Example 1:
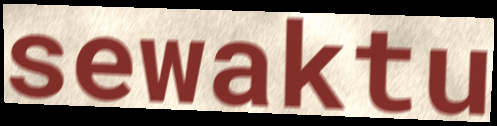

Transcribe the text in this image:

sewaktu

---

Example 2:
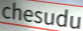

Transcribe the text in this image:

chesudu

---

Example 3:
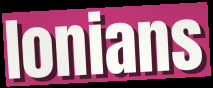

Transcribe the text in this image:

Ionians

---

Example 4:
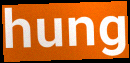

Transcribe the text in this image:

hung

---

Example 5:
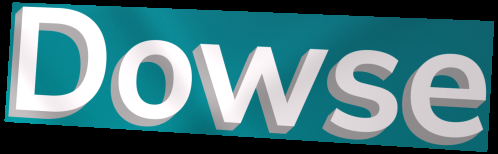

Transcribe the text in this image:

Dowse